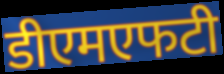
डीएमएफटी